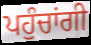
ਪਹੁੰਚਾਂਗੀ